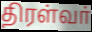
திரள்வர்